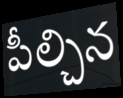
పీల్చిన